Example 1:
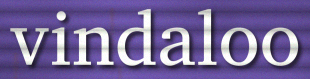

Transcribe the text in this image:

vindaloo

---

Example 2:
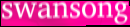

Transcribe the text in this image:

swansong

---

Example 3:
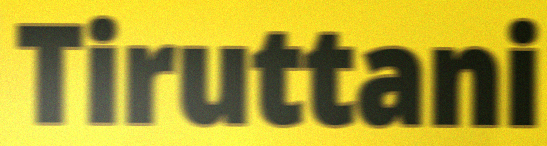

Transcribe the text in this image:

Tiruttani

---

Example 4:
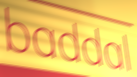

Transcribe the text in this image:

baddal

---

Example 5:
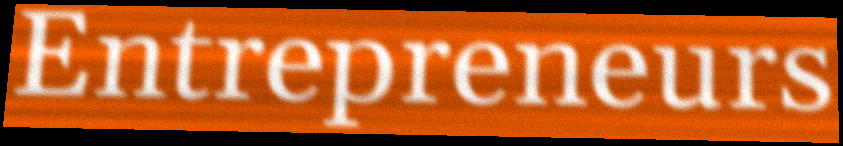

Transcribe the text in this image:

Entrepreneurs